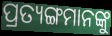
ପ୍ରତ୍ୟଙ୍ଗମାନଙ୍କୁ